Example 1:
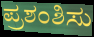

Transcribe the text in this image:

ಪ್ರಶಂಶಿಸು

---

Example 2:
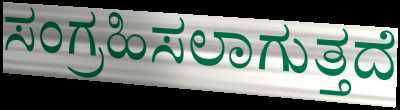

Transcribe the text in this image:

ಸಂಗ್ರಹಿಸಲಾಗುತ್ತದೆ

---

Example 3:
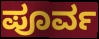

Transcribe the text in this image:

ಪೂರ್ವ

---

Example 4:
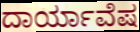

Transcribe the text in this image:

ದಾರ್ಯಾವೆಷ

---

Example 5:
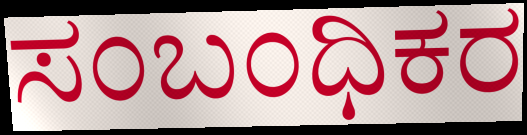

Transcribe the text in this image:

ಸಂಬಂಧಿಕರ